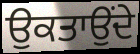
ਉਕਤਾਉਂਦੇ